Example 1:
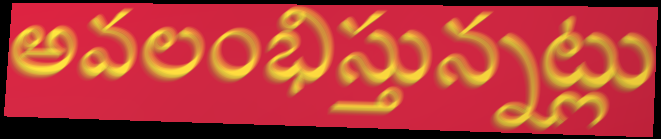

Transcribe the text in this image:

అవలంభిస్తున్నట్లు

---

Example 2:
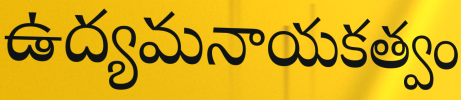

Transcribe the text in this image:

ఉద్యమనాయకత్వం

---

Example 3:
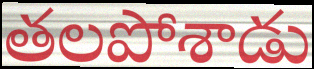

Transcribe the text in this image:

తలపోశాడు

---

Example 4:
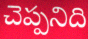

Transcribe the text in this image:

చెప్పనిది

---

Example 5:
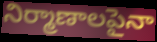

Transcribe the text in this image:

నిర్మాణాలపైనా